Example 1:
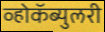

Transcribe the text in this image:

व्होकॅब्युलरी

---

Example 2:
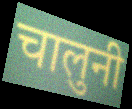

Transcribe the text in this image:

चालुनी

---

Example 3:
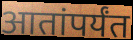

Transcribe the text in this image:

आतांपर्यंत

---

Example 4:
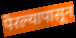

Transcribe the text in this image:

पेरल्यापासून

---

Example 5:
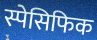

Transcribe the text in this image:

स्पेसिफिक